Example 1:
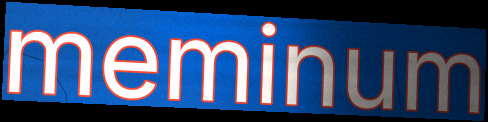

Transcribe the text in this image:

meminum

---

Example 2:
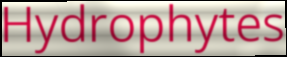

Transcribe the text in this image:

Hydrophytes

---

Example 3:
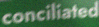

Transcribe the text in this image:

conciliated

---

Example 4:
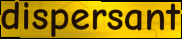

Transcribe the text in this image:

dispersant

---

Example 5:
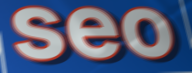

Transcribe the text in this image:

seo